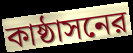
কাষ্ঠাসনের